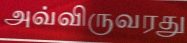
அவ்விருவரது